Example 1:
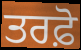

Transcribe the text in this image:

ਤਰਫ਼ੋ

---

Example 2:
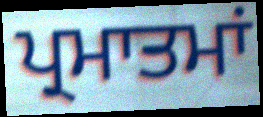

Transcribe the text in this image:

ਪ੍ਰਮਾਤਮਾਂ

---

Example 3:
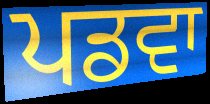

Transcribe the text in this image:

ਪਡਵਾ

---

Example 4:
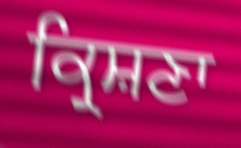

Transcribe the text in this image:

ਕ੍ਰਿਸ਼ਣਾ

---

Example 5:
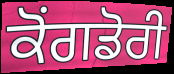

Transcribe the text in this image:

ਕੋਂਗਡੋਰੀ